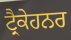
ਟ੍ਰੈਕੇਹਨਰ